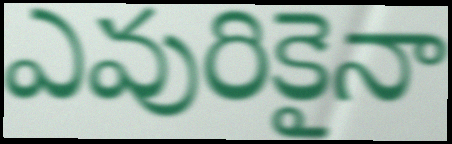
ఎవురికైనా